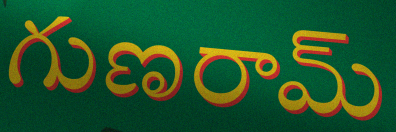
గుణరామ్